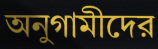
অনুগামীদের